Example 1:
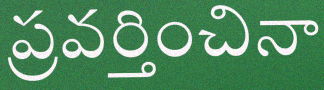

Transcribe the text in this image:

ప్రవర్తించినా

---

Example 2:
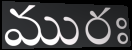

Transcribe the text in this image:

మురః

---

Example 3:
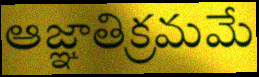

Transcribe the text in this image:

ఆజ్ఞాతిక్రమమే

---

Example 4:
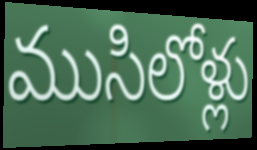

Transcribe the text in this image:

ముసిలోళ్లు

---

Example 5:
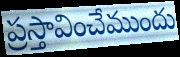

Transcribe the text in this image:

ప్రస్తావించేముందు